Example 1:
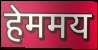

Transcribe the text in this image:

हेममय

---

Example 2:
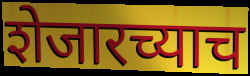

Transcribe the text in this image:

शेजारच्याच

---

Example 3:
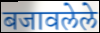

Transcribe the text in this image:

बजावलेले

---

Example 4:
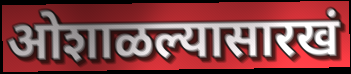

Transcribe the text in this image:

ओशाळल्यासारखं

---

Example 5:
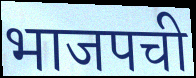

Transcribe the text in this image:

भाजपची